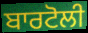
ਬਾਰਟੋਲੀ